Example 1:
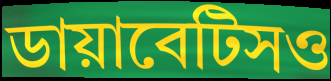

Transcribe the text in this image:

ডায়াবেটিসও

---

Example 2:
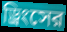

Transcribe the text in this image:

ড্রিংসের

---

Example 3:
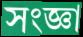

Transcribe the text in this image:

সংজ্ঞা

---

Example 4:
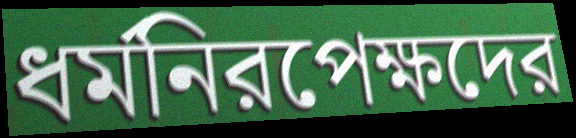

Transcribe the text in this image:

ধর্মনিরপেক্ষদের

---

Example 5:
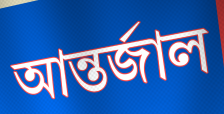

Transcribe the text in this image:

আন্তর্জাল